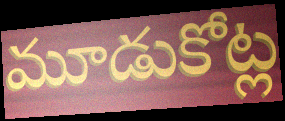
మూడుకోట్ల